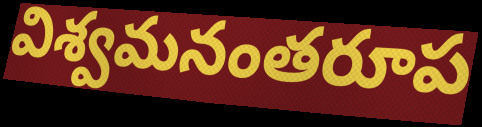
విశ్వమనంతరూప